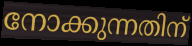
നോക്കുന്നതിന്